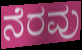
ನೆರವು